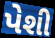
પેશી